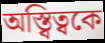
অস্ত্বিত্বকে